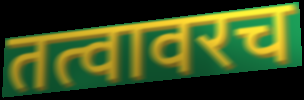
तत्वावरच